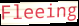
Fleeing